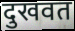
दुखवत